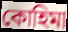
কোহিমা